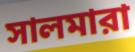
সালমারা